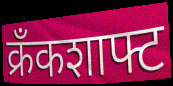
क्रँकशाफ्ट